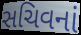
સચિવનાં